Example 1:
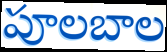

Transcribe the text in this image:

పూలబాల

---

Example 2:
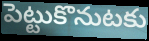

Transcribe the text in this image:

పెట్టుకొనుటకు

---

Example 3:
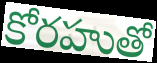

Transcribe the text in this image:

కోరహుతో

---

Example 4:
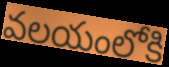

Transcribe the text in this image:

వలయంలోకి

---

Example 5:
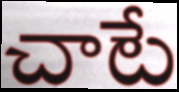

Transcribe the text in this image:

చాటే